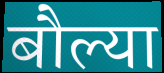
बौल्या